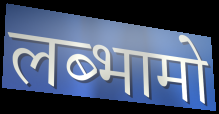
लब्भामो